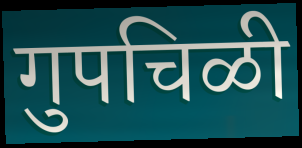
गुपचिळी